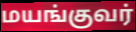
மயங்குவர்